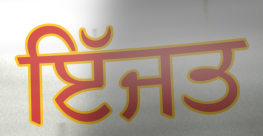
ਇੱਜਤ